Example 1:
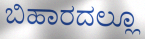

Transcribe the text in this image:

ಬಿಹಾರದಲ್ಲೂ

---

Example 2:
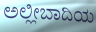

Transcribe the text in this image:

ಅಲ್ಲೀಬಾದಿಯ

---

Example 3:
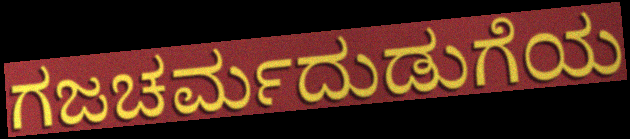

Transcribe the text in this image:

ಗಜಚರ್ಮದುಡುಗೆಯ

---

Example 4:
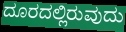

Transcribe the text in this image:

ದೂರದಲ್ಲಿರುವುದು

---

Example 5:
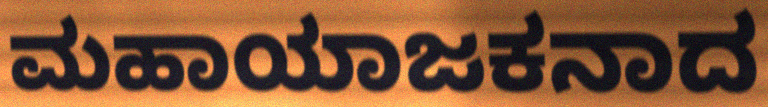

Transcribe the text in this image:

ಮಹಾಯಾಜಕನಾದ